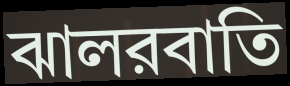
ঝালরবাতি